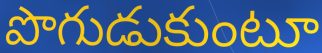
పొగుడుకుంటూ